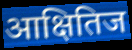
आक्षितिज